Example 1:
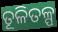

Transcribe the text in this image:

ତୂଳିତଳ୍ପ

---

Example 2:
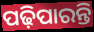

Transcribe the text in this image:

ପଢ଼ିପାରନ୍ତି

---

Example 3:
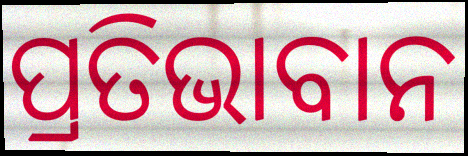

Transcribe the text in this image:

ପ୍ରତିଭାବାନ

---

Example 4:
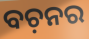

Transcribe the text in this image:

ବଚ଼ନର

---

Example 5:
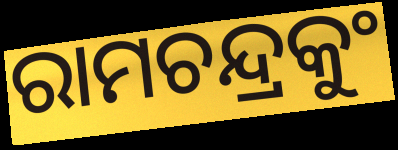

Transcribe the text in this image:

ରାମଚନ୍ଦ୍ରକୁଂ